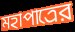
মহাপাত্রের